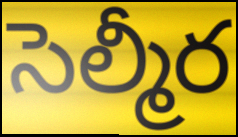
సెల్మీర